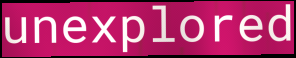
unexplored